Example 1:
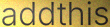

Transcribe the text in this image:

addthis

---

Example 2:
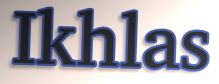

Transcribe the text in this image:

Ikhlas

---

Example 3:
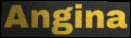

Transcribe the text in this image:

Angina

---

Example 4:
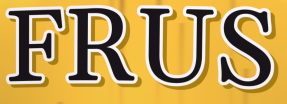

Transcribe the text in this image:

FRUS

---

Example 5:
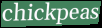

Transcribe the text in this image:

chickpeas